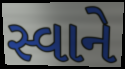
સ્વાને